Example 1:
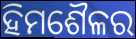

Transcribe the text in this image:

ହିମଶୈଳର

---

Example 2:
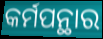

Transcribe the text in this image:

କର୍ମପନ୍ଥାର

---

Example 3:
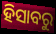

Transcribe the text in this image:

ହିସାବରୁ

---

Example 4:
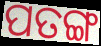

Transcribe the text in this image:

ପତଙ୍ଗ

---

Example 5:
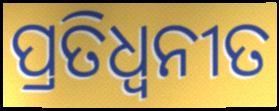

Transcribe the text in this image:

ପ୍ରତିଧ୍ବନୀତ